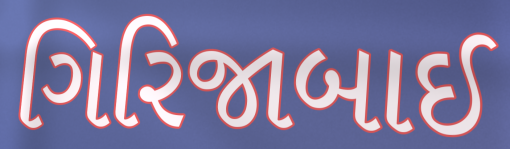
ગિરિજાબાઈ